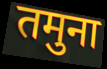
तमुना